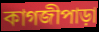
কাগজীপাড়া